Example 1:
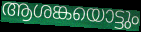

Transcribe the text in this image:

ആശങ്കയൊട്ടും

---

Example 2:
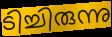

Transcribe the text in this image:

ടിച്ചിരുന്നു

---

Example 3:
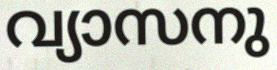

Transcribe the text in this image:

വ്യാസനു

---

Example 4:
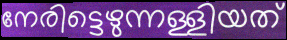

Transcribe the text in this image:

നേരിട്ടെഴുന്നള്ളിയത്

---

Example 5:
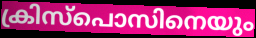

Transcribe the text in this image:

ക്രിസ്പൊസിനെയും